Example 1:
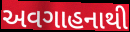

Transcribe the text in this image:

અવગાહનાથી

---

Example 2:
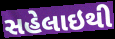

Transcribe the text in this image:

સહેલાઇથી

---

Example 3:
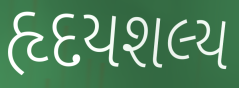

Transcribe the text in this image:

હૃદયશલ્ય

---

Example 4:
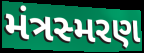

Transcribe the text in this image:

મંત્રસ્મરણ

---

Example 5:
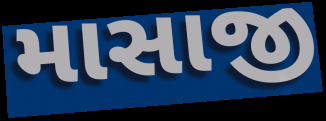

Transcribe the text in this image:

માસાજી